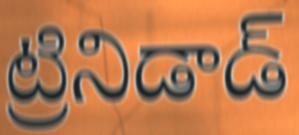
ట్రినిడాడ్